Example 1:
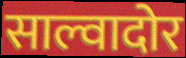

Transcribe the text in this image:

साल्वादोर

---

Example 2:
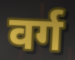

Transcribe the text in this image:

वर्ग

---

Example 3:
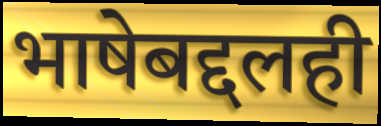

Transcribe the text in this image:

भाषेबद्दलही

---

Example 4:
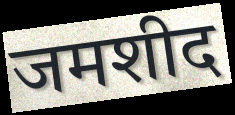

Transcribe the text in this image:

जमशीद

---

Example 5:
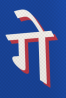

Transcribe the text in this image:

गे